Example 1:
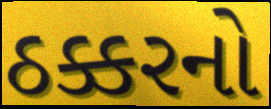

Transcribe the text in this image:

ઠક્કરનો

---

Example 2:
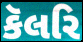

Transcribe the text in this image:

કૅલરિ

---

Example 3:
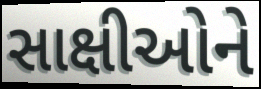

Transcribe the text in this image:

સાક્ષીઓને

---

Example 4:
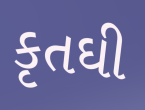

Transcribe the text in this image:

કૃતઘી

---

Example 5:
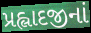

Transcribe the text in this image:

પ્રહ્લાદજીનાં